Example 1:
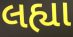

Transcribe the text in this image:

લહ્યા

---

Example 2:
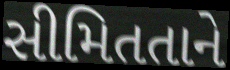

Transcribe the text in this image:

સીમિતતાને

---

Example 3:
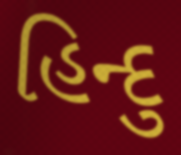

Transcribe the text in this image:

હિન્દુ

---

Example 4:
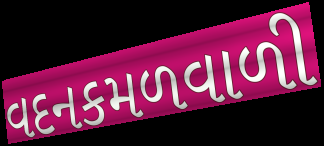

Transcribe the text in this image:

વદનકમળવાળી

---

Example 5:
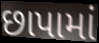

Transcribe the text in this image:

છાપામાં